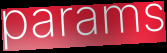
params